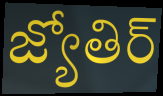
జ్యోతిర్